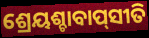
ଶ୍ରେୟଶ୍ଚାବାପ୍‌ସୀତି